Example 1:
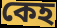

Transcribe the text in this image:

কেহ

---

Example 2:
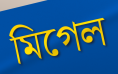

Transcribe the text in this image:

মিগেল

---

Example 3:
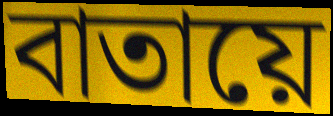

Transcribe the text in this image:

বাতায়ে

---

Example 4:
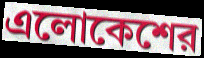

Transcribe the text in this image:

এলোকেশের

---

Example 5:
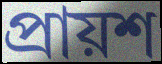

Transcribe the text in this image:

প্রায়শ